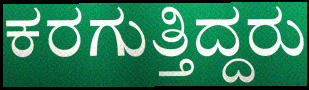
ಕರಗುತ್ತಿದ್ದರು